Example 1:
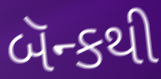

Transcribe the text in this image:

બૅન્કથી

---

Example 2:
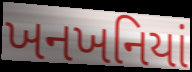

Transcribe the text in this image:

ખનખનિયાં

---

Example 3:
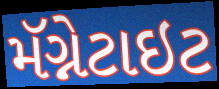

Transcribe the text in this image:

મૅગ્નેટાઇટ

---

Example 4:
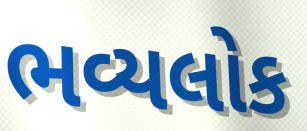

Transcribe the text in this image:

ભવ્યલોક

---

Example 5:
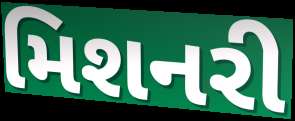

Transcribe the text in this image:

મિશનરી